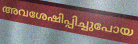
അവശേഷിപ്പിച്ചുപോയ